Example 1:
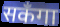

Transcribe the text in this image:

सकँगा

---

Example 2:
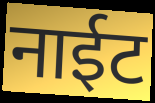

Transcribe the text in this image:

नाईट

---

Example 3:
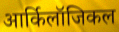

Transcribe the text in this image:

आर्किलॉजिकल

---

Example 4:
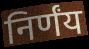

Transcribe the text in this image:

निर्णंय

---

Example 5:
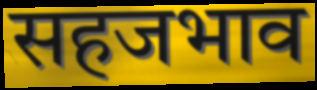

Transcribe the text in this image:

सहजभाव